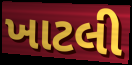
ખાટલી